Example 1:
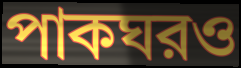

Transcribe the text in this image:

পাকঘরও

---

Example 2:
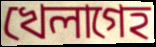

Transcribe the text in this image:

খেলাগেহ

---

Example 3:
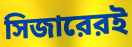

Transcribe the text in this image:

সিজারেরই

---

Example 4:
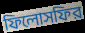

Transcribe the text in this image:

ফিলোসফির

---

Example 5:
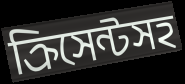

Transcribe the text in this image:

ক্রিসেন্টসহ